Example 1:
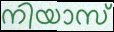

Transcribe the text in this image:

നിയാസ്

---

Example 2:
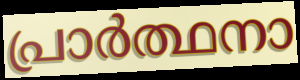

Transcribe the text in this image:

പ്രാർത്ഥനാ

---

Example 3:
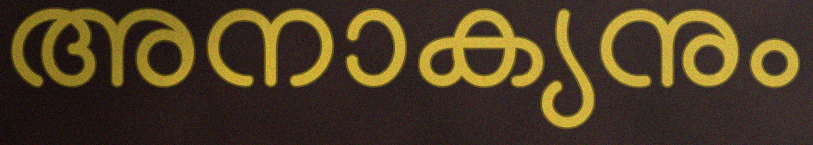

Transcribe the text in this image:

അനാക്യനും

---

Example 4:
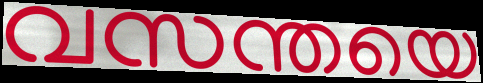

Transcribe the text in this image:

വസന്തയെ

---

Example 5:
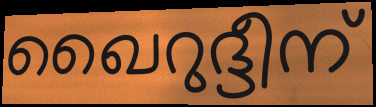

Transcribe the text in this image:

ഖൈറുദ്ദീന്